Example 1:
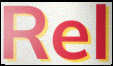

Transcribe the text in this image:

Rel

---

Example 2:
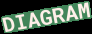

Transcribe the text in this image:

DIAGRAM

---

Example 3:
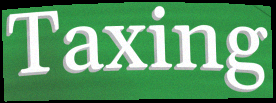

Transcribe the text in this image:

Taxing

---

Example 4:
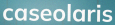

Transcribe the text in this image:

caseolaris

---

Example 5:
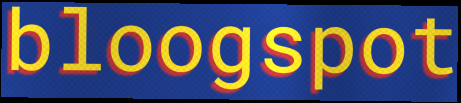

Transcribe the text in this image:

bloogspot